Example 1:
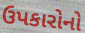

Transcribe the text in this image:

ઉપકારોનો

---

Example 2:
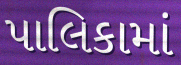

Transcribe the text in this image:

પાલિકામાં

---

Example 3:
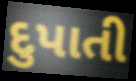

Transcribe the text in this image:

દુપાતી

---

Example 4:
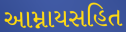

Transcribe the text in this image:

આમ્નાયસહિત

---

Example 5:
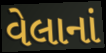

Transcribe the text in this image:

વેલાનાં